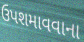
ઉપશમાવવાના